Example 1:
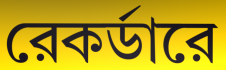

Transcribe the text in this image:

রেকর্ডারে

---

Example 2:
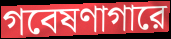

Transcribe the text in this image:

গবেষণাগারে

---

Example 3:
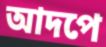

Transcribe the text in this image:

আদপে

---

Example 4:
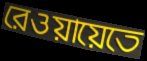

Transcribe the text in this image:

রেওয়ায়েতে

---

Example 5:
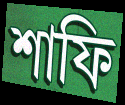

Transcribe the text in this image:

শাফি